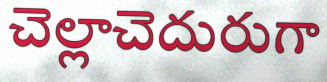
చెల్లాచెదురుగా